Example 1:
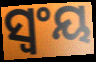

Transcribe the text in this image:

ସ୍ୱଂୟ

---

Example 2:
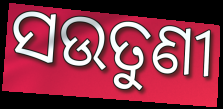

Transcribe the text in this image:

ସଉତୁଣୀ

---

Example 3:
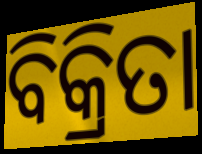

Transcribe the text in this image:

ବିକ୍ରିତା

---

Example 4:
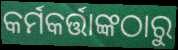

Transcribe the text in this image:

କର୍ମକର୍ତ୍ତାଙ୍କଠାରୁ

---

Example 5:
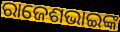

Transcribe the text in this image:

ରାଜେଶଭାଇଙ୍କ